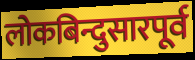
लोकबिन्दुसारपूर्व